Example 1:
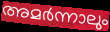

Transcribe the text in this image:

അമർന്നാലും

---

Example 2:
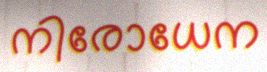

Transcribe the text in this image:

നിരോധേന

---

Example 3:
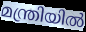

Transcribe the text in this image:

മന്ത്രിയിൽ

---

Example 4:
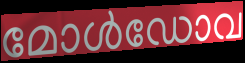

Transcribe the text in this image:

മോൾഡോവ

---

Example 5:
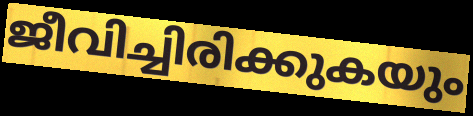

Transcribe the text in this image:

ജീവിച്ചിരിക്കുകയും